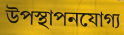
উপস্থাপনযোগ্য